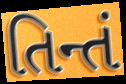
તિન્તં